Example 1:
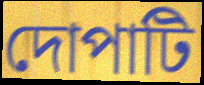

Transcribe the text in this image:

দোপাটি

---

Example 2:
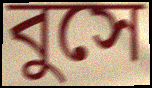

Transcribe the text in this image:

বুসে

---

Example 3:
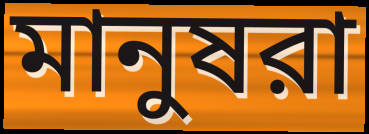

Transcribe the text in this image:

মানুষরা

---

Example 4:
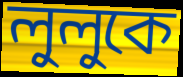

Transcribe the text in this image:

লুলুকে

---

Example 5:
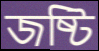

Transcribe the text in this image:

জষ্টি